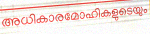
അധികാരമോഹികളുടെയും